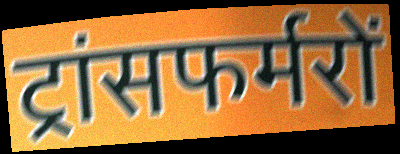
ट्रांसफर्मरों